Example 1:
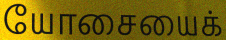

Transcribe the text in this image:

யோசையைக்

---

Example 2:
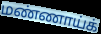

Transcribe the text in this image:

மண்ணாய்க்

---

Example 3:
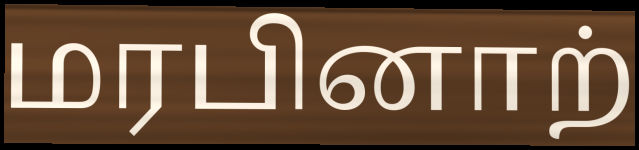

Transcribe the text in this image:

மரபினாற்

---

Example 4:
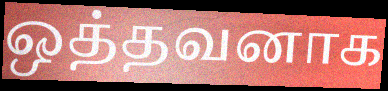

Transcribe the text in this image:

ஒத்தவனாக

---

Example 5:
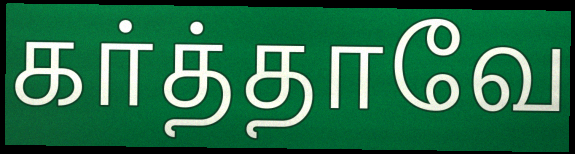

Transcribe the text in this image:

கர்த்தாவே